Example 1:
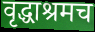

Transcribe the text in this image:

वृद्धाश्रमच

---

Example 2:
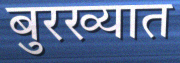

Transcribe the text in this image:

बुरख्यात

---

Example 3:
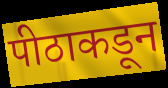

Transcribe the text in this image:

पीठाकडून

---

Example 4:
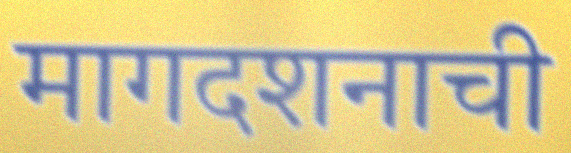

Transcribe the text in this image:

मागदशनाची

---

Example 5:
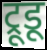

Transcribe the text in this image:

ट्रूडू